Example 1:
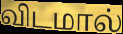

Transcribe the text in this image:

விடமால்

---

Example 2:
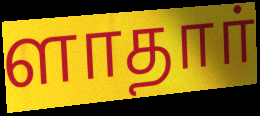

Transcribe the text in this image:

ளாதார்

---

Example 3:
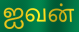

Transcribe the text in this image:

ஐவன்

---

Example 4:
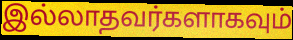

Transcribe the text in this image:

இல்லாதவர்களாகவும்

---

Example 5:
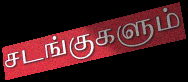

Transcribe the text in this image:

சடங்குகளும்